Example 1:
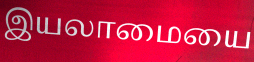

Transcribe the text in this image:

இயலாமையை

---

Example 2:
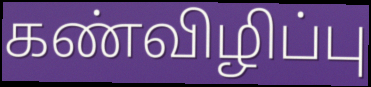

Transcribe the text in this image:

கண்விழிப்பு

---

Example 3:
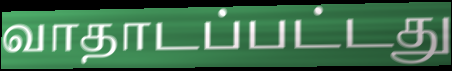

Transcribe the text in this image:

வாதாடப்பட்டது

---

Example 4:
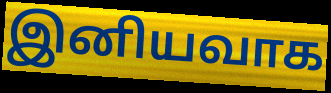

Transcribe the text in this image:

இனியவாக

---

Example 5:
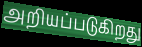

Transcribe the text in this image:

அறியப்படுகிறது